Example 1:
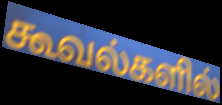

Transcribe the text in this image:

கூவல்களில்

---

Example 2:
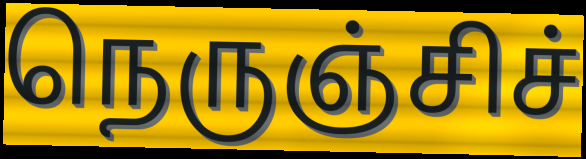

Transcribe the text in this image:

நெருஞ்சிச்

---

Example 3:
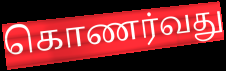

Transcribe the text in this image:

கொணர்வது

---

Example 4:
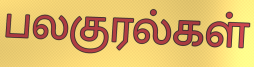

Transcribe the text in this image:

பலகுரல்கள்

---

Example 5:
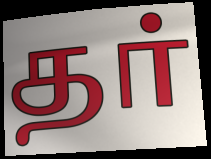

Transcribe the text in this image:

தர்